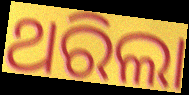
ଥରିଲା